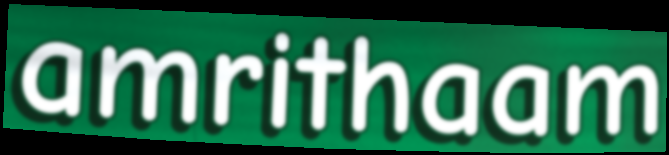
amrithaam